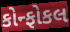
કોન્ફોકલ